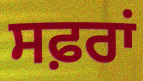
ਸਫ਼ਰਾਂ